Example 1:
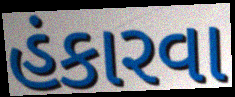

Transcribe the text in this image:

હંકારવા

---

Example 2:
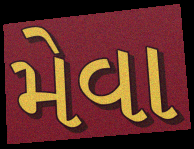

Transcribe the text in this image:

મેવા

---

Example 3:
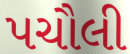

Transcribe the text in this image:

પચૌલી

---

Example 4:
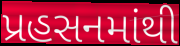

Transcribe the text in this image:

પ્રહસનમાંથી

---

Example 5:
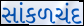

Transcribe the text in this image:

સાંકળચંદ